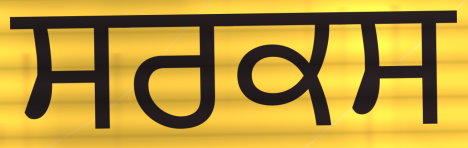
ਸਰਕਸ